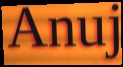
Anuj